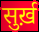
सुर्ख़